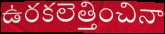
ఉరకలెత్తించినా